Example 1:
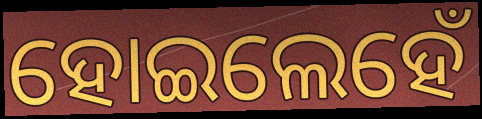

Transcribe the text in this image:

ହୋଇଲେହେଁ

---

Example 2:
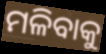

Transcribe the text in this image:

ମଳିବାକୁ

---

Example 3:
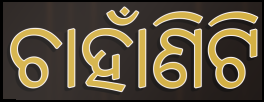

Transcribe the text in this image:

ଚାହାଁଣିଟି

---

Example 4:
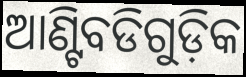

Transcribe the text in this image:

ଆଣ୍ଟିବଡିଗୁଡ଼ିକ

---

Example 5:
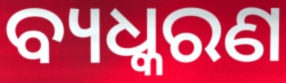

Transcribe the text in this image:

ବ୍ୟଧ୍କରଣ